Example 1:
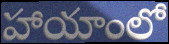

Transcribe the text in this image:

హాయాంలో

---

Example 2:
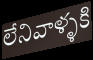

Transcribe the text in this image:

లేనివాళ్ళకి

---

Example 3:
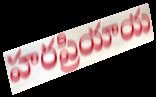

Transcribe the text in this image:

హరప్రియాయ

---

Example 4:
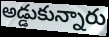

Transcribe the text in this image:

అడ్డుకున్నారు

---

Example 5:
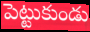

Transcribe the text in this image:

పెట్టుకుండు